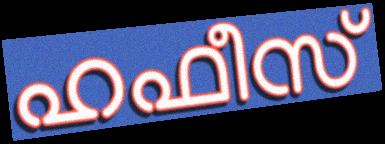
ഹഫീസ്